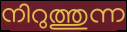
നിറുത്തുന്ന